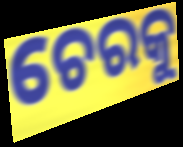
ଚେରକୁ